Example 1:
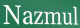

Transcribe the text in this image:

Nazmul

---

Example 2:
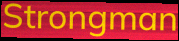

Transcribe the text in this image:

Strongman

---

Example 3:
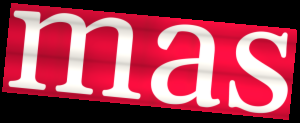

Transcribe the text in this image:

mas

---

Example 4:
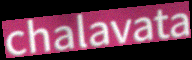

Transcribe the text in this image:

chalavata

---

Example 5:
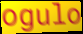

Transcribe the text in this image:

ogulo